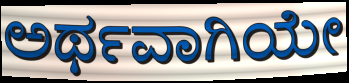
ಅರ್ಥವಾಗಿಯೇ